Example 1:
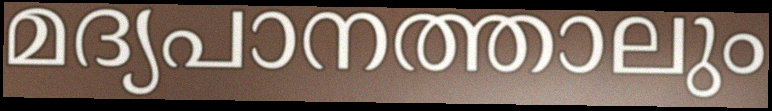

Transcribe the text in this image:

മദ്യപാനത്താലും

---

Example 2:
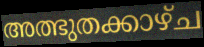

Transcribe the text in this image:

അത്ഭുതക്കാഴ്ച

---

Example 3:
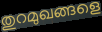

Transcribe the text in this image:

തുറമുഖങ്ങളെ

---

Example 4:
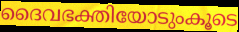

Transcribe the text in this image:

ദൈവഭക്തിയോടുംകൂടെ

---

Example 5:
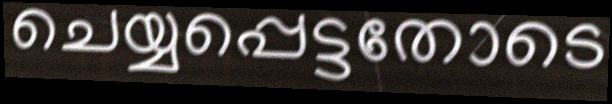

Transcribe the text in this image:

ചെയ്യപ്പെട്ടതോടെ